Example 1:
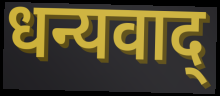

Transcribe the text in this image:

धन्यवाद्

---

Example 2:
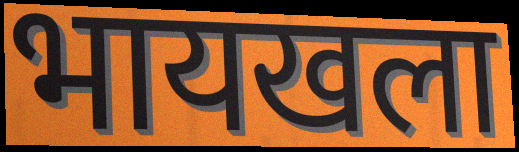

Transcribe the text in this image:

भायखला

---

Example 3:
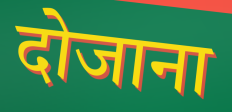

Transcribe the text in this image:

दोजाना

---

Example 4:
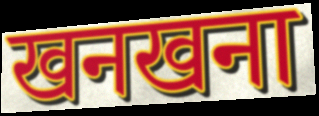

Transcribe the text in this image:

खनखना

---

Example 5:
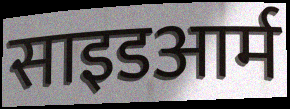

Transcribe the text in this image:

साइडआर्म